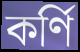
কর্ণি